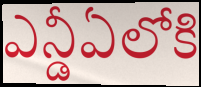
ఎన్డీఏలోకి